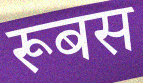
रूबस